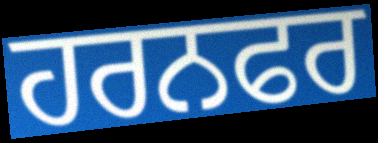
ਹਰਨਫਰ